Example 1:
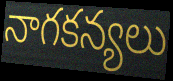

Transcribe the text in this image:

నాగకన్యలు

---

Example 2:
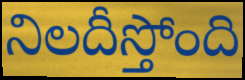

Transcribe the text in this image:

నిలదీస్తోంది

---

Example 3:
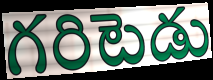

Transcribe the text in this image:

గరిటెడు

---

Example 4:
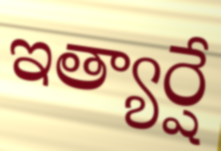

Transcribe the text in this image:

ఇత్యార్షే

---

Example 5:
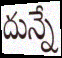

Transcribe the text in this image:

దున్నే